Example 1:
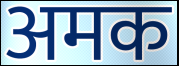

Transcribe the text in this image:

अमक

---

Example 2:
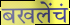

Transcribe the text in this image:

बखलेंचं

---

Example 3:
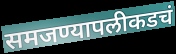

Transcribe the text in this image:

समजण्यापलीकडचं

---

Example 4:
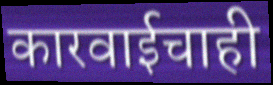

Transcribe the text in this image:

कारवाईचाही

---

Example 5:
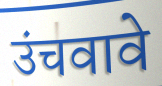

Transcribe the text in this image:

उंचवावे